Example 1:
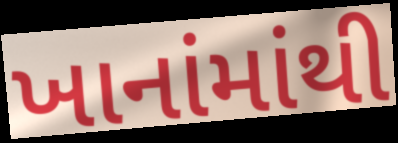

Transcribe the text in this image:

ખાનાંમાંથી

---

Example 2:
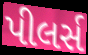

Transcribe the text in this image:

પીલર્સ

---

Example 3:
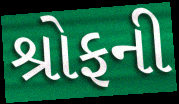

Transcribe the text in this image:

શ્રોફની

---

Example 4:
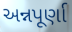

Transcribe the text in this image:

અન્નપૂર્ણા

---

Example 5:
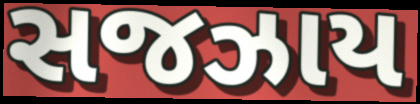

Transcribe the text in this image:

સજઝાય